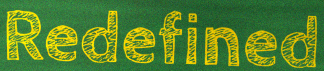
Redefined